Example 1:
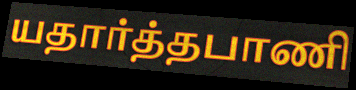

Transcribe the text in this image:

யதார்த்தபாணி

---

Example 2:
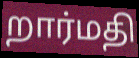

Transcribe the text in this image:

றார்மதி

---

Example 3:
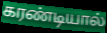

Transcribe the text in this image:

கரண்டியால்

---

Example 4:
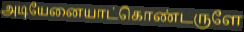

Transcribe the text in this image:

அடியேனையாட்கொண்டருளே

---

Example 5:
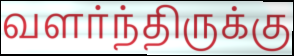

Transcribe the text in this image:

வளர்ந்திருக்கு